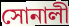
সোনালী